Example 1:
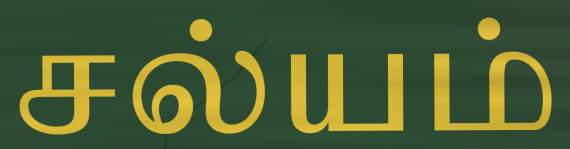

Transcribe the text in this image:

சல்யம்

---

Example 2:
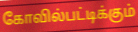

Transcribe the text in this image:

கோவில்பட்டிக்கும்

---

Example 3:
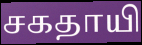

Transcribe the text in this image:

சகதாயி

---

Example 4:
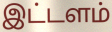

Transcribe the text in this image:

இட்டளம்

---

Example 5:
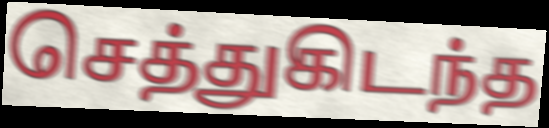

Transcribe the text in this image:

செத்துகிடந்த